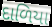
દાળિયા